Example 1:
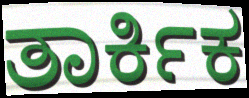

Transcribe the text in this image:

ತಾರ್ಕಿಕ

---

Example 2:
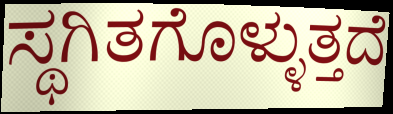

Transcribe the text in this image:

ಸ್ಥಗಿತಗೊಳ್ಳುತ್ತದೆ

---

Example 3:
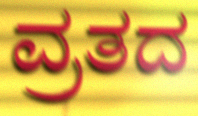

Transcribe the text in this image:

ವ್ರತದ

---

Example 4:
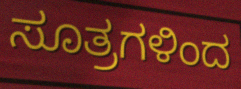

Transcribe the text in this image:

ಸೂತ್ರಗಳಿಂದ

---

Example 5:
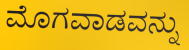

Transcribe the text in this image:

ಮೊಗವಾಡವನ್ನು